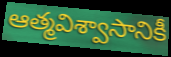
ఆత్మవిశ్వాసానికీ